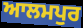
ਆਲਮਪੁਰ